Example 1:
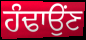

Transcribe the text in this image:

ਹੰਢਾਉਂਣ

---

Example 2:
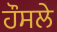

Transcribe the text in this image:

ਹੌਸਲੇ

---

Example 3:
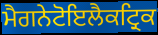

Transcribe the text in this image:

ਮੈਗਨੇਟੋਇਲੈਕਟ੍ਰਿਕ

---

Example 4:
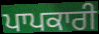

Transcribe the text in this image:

ਪਾਪਕਾਰੀ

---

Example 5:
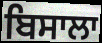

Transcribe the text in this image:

ਬਿਸਾਲਾ